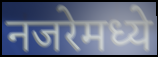
नजरेमध्ये